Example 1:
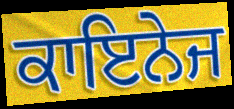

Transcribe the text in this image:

ਕਾਇਨੇਜ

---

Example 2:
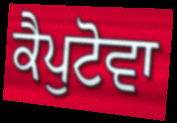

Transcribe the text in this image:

ਕੈਪੁਟੋਵਾ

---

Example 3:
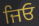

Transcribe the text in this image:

ਜਿਓ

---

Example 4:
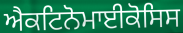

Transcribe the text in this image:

ਐਕਟਿਨੋਮਾਈਕੋਸਿਸ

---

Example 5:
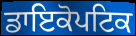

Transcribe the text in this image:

ਡਾਇਕੋਪਟਿਕ